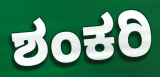
ಶಂಕರಿ